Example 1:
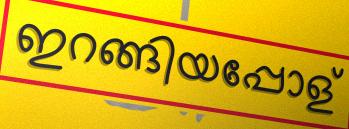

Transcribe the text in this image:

ഇറങ്ങിയപ്പോള്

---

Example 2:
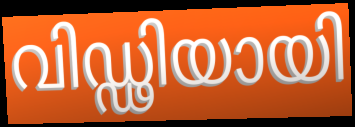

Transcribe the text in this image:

വിഡ്ഢിയായി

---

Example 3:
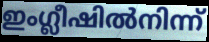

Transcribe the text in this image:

ഇംഗ്ലീഷിൽനിന്ന്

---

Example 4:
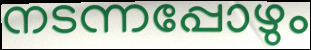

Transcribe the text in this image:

നടന്നപ്പോഴും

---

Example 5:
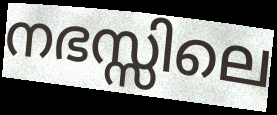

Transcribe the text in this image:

നഭസ്സിലെ